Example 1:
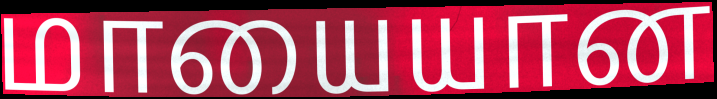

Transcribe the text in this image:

மாயையான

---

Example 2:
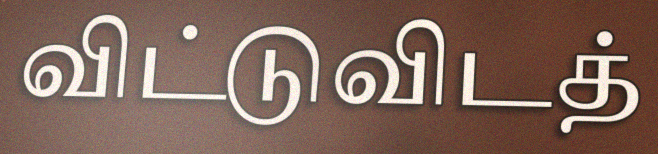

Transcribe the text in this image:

விட்டுவிடத்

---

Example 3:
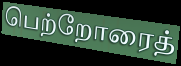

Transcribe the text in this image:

பெற்றோரைத்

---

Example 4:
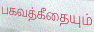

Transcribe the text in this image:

பகவத்கீதையும்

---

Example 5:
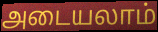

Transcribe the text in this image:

அடையலாம்